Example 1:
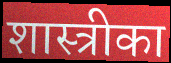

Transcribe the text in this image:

शास्त्रीका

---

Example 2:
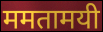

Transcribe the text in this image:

ममतामयी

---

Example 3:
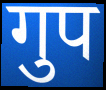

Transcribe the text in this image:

गुप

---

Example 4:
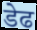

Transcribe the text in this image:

डेढ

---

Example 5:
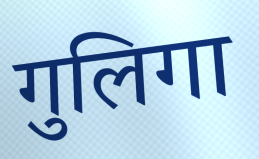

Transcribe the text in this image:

गुलिगा